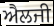
ਐਲਜੀ